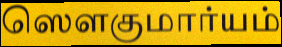
ஸௌகுமார்யம்